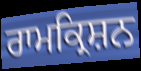
ਰਾਮਕ੍ਰਿਸ਼ਨ